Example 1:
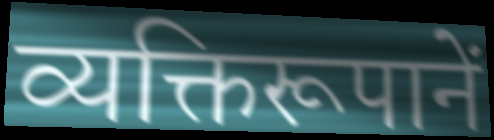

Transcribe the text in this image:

व्यक्तिरूपानें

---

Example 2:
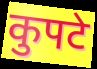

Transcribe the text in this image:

कुपटे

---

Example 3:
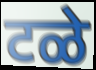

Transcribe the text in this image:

टळे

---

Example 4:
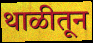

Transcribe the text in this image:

थाळीतून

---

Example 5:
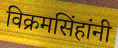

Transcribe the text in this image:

विक्रमसिंहांनी